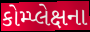
કોમ્પ્લેક્ષના